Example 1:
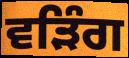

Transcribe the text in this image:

ਵੜਿੰਗ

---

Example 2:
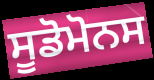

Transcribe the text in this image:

ਸੂਡੋਮੋਨਸ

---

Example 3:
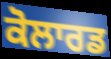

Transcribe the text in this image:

ਕੋਲਾਰਡ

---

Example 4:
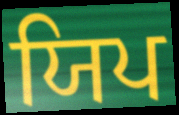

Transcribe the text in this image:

ਯਿਪ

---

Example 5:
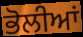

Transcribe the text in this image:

ਭੋਲੀਆਂ